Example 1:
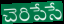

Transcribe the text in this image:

చెరిపేసే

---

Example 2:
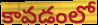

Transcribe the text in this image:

కావడంలో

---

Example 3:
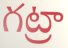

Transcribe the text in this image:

గట్రా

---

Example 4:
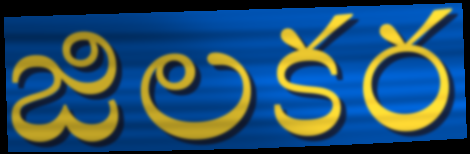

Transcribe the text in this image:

జిలకర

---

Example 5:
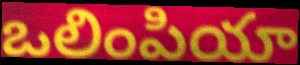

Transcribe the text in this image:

ఒలింపియా